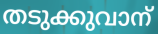
തടുക്കുവാന്